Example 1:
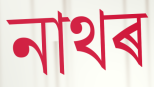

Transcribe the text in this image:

নাথৰ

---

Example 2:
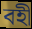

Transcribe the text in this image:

বহী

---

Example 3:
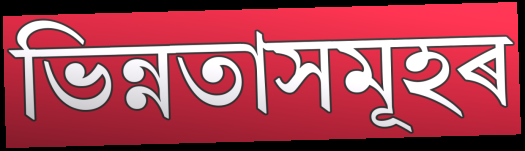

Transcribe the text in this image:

ভিন্নতাসমূহৰ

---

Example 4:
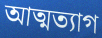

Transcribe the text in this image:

আত্মত্যাগ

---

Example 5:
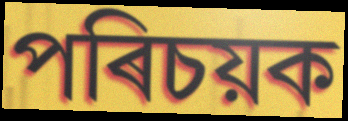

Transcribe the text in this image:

পৰিচয়ক